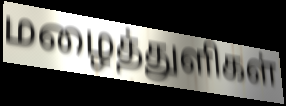
மழைத்துளிகள்